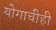
योगाचीही